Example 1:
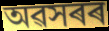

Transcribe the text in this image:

অৱসৰৰ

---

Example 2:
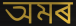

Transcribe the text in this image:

অমৰ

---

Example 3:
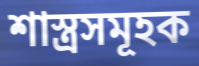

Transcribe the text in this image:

শাস্ত্ৰসমূহক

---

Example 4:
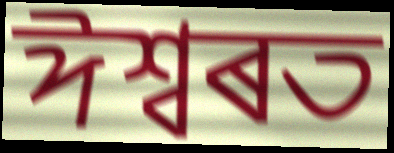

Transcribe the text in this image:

ঈশ্বৰত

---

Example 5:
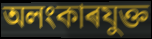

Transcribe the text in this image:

অলংকাৰযুক্ত